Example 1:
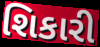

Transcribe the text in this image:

શિકારી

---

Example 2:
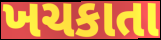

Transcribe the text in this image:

ખચકાતા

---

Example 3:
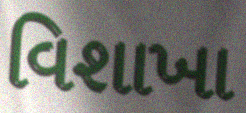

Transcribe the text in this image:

વિશાખા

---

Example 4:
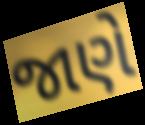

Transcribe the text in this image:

જાણે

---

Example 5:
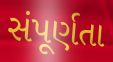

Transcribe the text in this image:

સંપૂર્ણતા